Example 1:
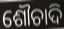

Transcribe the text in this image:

ଶୌଚାଦି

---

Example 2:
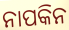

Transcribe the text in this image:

ନାପକିନ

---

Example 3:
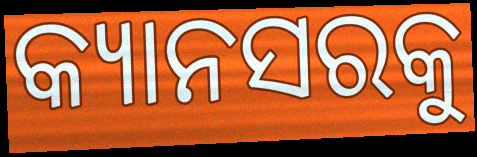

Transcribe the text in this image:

କ୍ୟାନସରକୁ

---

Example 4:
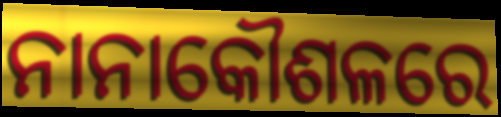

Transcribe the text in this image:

ନାନାକୌଶଳରେ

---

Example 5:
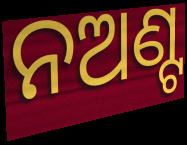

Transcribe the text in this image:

ନଅଣ୍ଟ